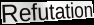
Refutation